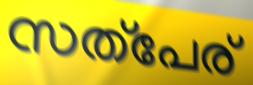
സത്പേര്